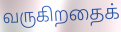
வருகிறதைக்